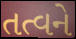
તત્વને